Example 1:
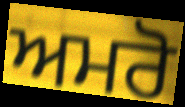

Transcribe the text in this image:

ਅਮਰੋ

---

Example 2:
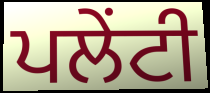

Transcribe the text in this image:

ਪਲੇਂਟੀ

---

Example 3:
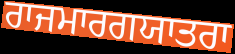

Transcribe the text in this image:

ਰਾਜਮਾਰਗਯਾਤਰਾ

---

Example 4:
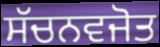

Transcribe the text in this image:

ਸੱਚਨਵਜੋਤ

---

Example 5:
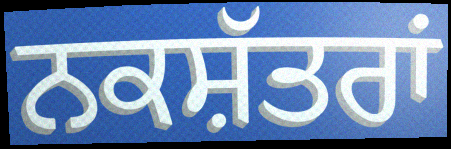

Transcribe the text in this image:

ਨਕਸ਼ੱਤਰਾਂ